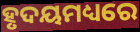
ହୃଦୟମଧ୍ୟରେ